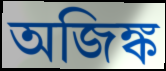
অজিঙ্ক